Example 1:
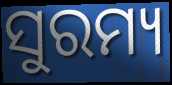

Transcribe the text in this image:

ସୁରମ୍ୟ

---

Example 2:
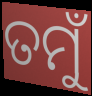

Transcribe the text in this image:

ତମୁଁ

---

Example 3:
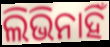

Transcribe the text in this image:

ଲିଭିନାହିଁ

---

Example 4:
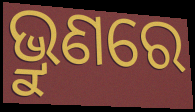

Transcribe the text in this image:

ଭ୍ରୁଣରେ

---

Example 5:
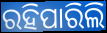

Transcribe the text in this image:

ରହିପାରିଲି